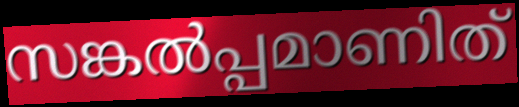
സങ്കൽപ്പമാണിത്